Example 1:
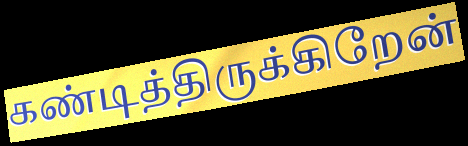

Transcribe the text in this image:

கண்டித்திருக்கிறேன்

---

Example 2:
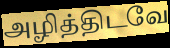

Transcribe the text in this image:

அழித்திடவே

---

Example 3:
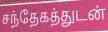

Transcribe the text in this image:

சந்தேகத்துடன்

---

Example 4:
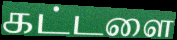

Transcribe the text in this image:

கட்டளை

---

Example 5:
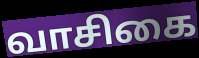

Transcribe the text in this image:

வாசிகை